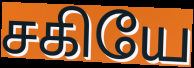
சகியே